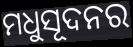
ମଧୁସୂଦନର